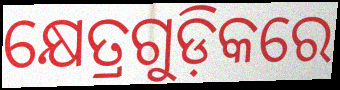
କ୍ଷେତ୍ରଗୁଡ଼ିକରେ